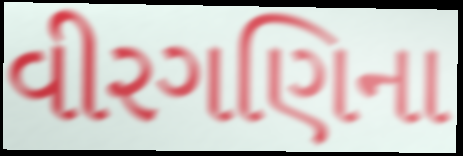
વીરગણિના